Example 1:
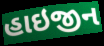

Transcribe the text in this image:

હાઇજીન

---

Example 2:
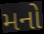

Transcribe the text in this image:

મનો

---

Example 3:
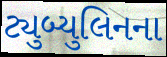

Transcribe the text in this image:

ટ્યુબ્યુલિનના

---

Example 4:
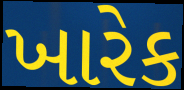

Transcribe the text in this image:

ખારેક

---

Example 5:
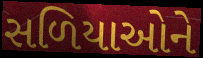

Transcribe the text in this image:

સળિયાઓને